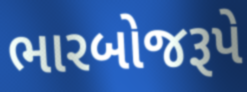
ભારબોજરૂપે